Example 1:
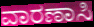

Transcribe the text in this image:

ವಾರಣಾಸಿ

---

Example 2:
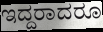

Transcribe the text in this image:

ಇದ್ದರಾದರೂ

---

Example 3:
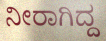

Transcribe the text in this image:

ನೀರಾಗಿದ್ದ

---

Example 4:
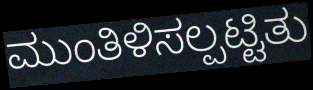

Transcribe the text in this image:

ಮುಂತಿಳಿಸಲ್ಪಟ್ಟಿತು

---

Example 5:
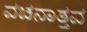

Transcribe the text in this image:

ವಚನಾತ್ತವ